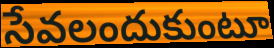
సేవలందుకుంటూ